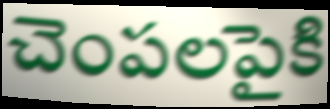
చెంపలపైకి